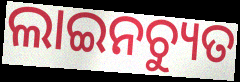
ଲାଇନଚ୍ୟୁତ